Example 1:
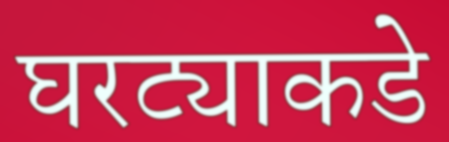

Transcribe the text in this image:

घरट्याकडे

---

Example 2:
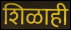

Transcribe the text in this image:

शिळाही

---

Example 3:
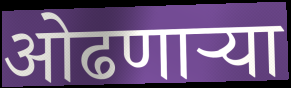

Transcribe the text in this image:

ओढणार्‍या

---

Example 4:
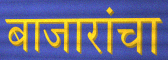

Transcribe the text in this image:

बाजारांचा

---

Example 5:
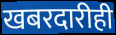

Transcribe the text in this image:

खबरदारीही